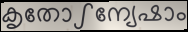
കൃതോഽന്യേഷാം